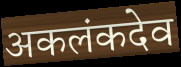
अकलंकदेव